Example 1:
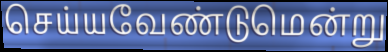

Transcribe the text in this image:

செய்யவேண்டுமென்று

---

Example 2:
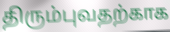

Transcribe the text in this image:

திரும்புவதற்காக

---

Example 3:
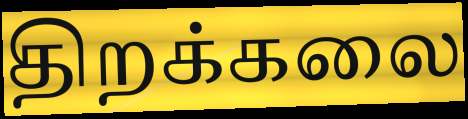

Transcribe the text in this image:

திறக்கலை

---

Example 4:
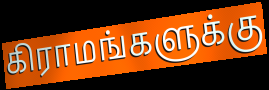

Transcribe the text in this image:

கிராமங்களுக்கு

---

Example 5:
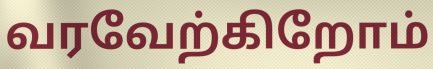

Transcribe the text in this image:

வரவேற்கிறோம்